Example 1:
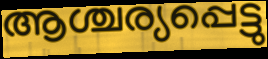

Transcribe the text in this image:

ആശ്ചര്യപ്പെട്ടു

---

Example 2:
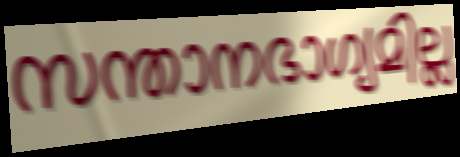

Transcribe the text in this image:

സന്താനഭാഗ്യമില്ല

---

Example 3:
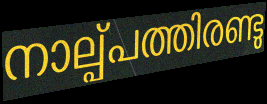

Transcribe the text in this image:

നാല്പ്പത്തിരണ്ടു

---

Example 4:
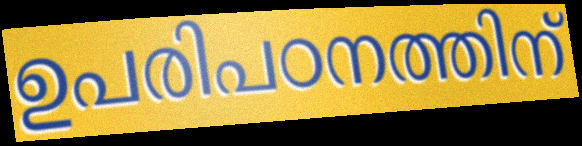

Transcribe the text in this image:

ഉപരിപഠനത്തിന്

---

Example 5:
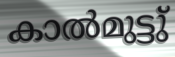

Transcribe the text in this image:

കാൽമുട്ടു്